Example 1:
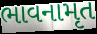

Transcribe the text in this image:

ભાવનામૃત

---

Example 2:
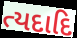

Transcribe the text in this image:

ત્યદાદિ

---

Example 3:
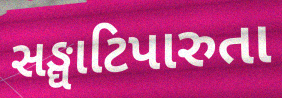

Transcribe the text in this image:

સઙ્ઘાટિપારુતા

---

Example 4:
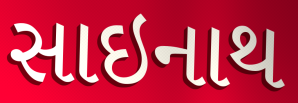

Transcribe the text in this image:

સાઇનાથ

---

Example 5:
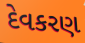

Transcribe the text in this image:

દેવકરણ